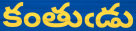
కంతుఁడు